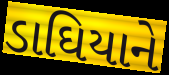
ડાઘિયાને